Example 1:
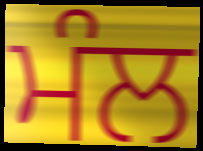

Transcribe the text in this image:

ਮੰਲ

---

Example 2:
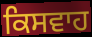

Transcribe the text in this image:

ਕਿਸਵਾਹ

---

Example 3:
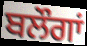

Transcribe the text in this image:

ਬਲੌਗਾਂ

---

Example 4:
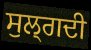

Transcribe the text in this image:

ਸੁਲ੍ਗਦੀ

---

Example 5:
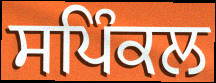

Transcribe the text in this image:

ਸਪਿੰਕਲ